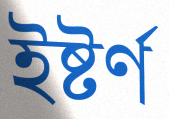
ইষ্টৰ্ণ